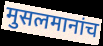
मुसलमानांच